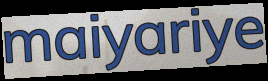
maiyariye